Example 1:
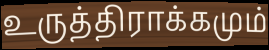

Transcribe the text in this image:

உருத்திராக்கமும்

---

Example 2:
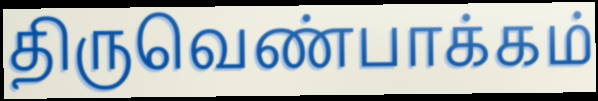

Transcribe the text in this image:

திருவெண்பாக்கம்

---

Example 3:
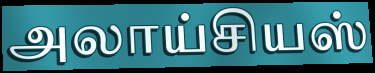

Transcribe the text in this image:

அலாய்சியஸ்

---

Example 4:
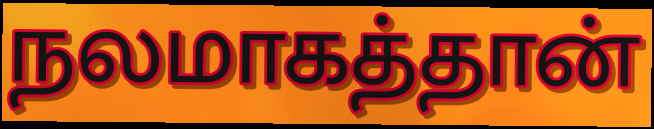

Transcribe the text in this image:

நலமாகத்தான்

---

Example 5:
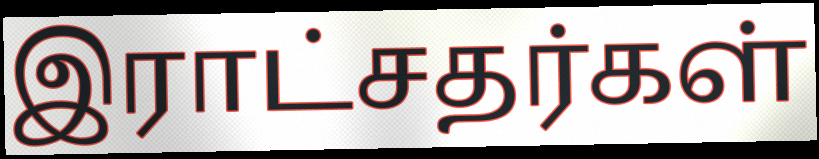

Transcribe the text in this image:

இராட்சதர்கள்